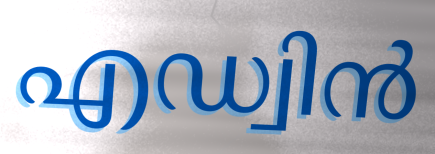
എഡ്വിൻ